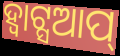
ହ୍ୱାଟ୍ସଆପ୍